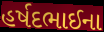
હર્ષદભાઈના